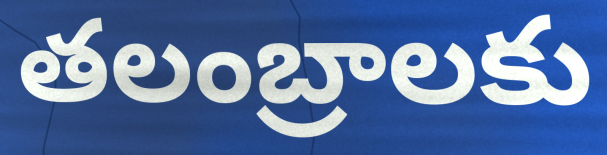
తలంబ్రాలకు